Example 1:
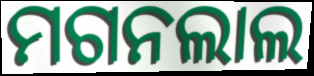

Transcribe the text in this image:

ମଗନଲାଲ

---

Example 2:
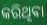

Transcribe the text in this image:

କରିଥିଵା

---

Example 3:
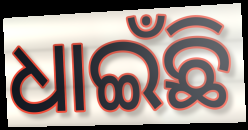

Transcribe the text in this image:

ଧାଇଁଛି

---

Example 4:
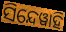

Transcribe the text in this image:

ସିନ୍ଦେୱାହି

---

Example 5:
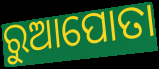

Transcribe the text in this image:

ରୁଆପୋତା